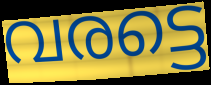
വരട്ടെ